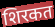
शिरकत